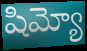
షిమ్యో